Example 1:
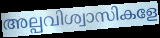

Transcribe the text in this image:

അല്പവിശ്വാസികളേ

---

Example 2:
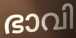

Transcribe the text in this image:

ഭാവി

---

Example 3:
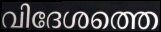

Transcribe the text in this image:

വിദേശത്തെ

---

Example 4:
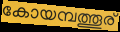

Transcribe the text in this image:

കോയമ്പത്തൂര്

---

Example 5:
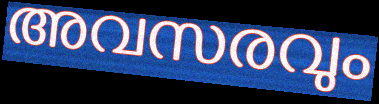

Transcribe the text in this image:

അവസരവും